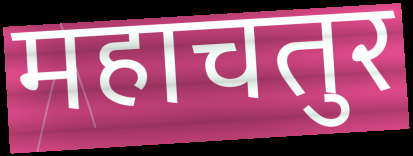
महाचतुर